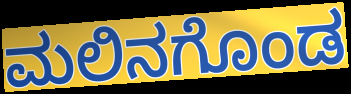
ಮಲಿನಗೊಂಡ